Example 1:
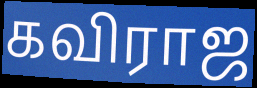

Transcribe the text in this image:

கவிராஜ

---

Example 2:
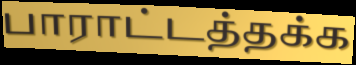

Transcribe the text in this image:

பாராட்டத்தக்க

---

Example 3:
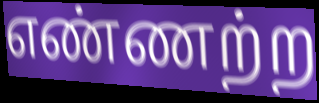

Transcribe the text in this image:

எண்ணற்ற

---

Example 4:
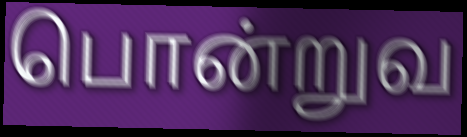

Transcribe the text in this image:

பொன்றுவ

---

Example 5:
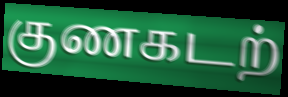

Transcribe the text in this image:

குணகடற்